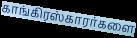
காங்கிரஸ்காரர்களை